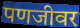
पणजीवर